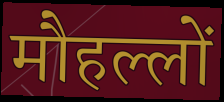
मौहल्लों